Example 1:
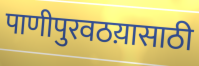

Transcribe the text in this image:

पाणीपुरवठय़ासाठी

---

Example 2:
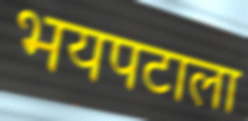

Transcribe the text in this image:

भयपटाला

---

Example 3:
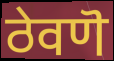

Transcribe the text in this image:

ठेवणॆ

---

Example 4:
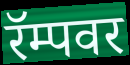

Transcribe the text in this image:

रॅम्पवर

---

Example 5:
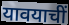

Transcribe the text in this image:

यावयाचीं